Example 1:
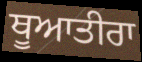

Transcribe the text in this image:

ਥੂਆਤੀਰਾ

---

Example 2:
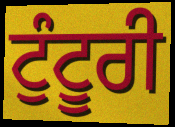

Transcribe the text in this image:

ਟੁੰਟੂਰੀ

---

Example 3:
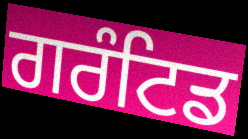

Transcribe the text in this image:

ਗਰੰਟਿਡ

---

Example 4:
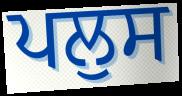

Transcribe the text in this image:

ਪਲੁਸ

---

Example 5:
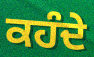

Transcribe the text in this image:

ਕਹੰਦੇ